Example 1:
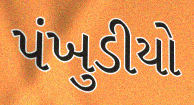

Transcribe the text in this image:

પંખુડીયો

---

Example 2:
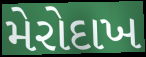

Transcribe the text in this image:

મેરોદાખ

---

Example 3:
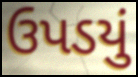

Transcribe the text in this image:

ઉપડયું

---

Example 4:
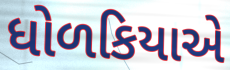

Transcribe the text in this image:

ધોળકિયાએ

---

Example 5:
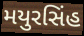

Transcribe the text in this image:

મયુરસિંહ